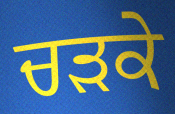
ਚੜਕੇ